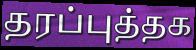
தரப்புத்தக